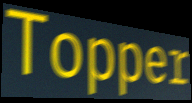
Topper